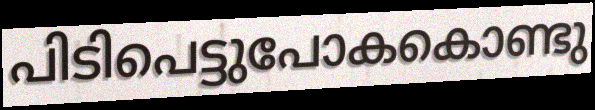
പിടിപെട്ടുപോകകൊണ്ടു